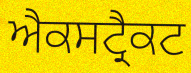
ਐਕਸਟ੍ਰੈਕਟ